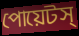
পোয়েটস্